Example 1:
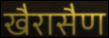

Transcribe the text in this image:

खैरासैण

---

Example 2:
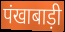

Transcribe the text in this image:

पंखाबाड़ी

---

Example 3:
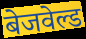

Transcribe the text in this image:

बेजवेल्ड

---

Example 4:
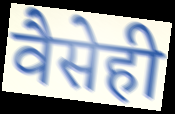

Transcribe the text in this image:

वैसेही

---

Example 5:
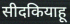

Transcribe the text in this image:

सीदकियाहू